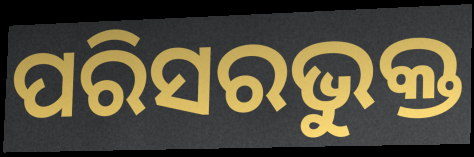
ପରିସରଭୁକ୍ତ